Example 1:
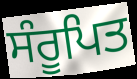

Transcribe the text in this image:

ਸੰਰੂਪਿਤ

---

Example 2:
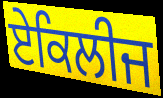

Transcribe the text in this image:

ਏਕਿਲੀਜ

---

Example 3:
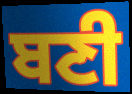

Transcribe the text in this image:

ਬਣੀ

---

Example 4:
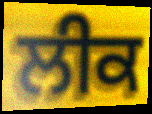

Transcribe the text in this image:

ਲੀਕ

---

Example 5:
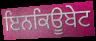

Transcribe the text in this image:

ਇਨਕਿਊਬੇਟ